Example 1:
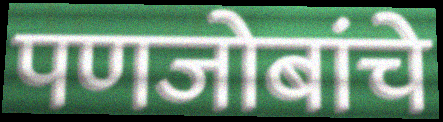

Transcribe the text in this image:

पणजोबांचे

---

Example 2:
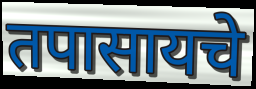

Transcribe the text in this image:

तपासायचे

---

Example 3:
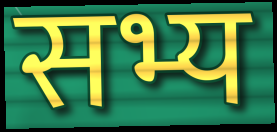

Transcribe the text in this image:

सभ्य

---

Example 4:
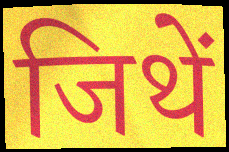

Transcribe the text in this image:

जिथें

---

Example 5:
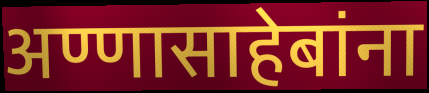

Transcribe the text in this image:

अण्णासाहेबांना